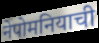
नेपोमनियाची